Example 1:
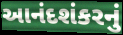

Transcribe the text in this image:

આનંદશંકરનું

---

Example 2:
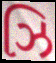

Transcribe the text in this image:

ઝિ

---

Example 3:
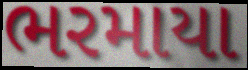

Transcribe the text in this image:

ભરમાયા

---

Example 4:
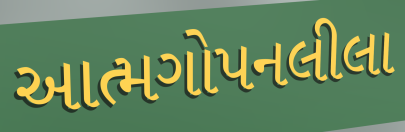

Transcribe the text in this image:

આત્મગોપનલીલા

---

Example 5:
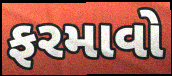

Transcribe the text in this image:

ફરમાવો